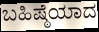
ಬಹಿಷ್ಠೆಯಾದ